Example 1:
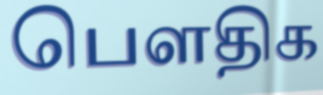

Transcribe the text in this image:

பௌதிக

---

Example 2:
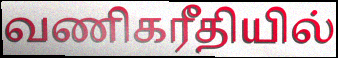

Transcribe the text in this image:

வணிகரீதியில்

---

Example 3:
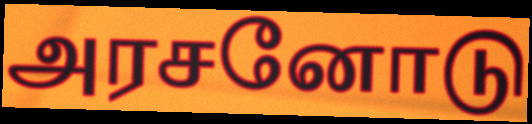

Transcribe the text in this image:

அரசனோடு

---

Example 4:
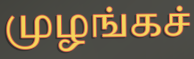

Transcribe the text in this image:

முழங்கச்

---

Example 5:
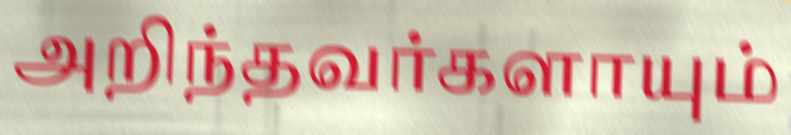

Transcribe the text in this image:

அறிந்தவர்களாயும்